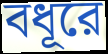
বধূরে